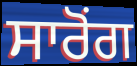
ਸਾਰੋਂਗ